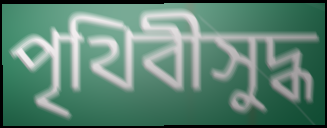
পৃথিবীসুদ্ধ